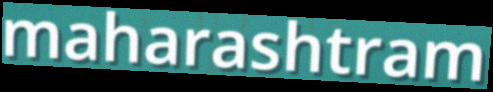
maharashtram